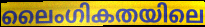
ലൈംഗികതയിലെ